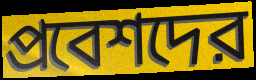
প্রবেশদের